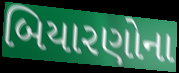
બિયારણોના